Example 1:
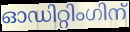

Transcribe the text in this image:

ഓഡിറ്റിംഗിന്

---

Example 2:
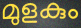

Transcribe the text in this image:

മുളകും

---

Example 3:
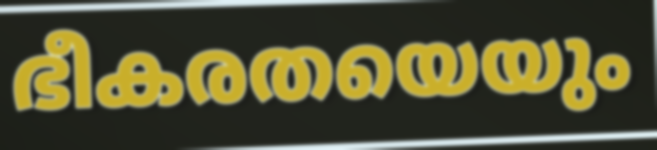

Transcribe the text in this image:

ഭീകരതയെയും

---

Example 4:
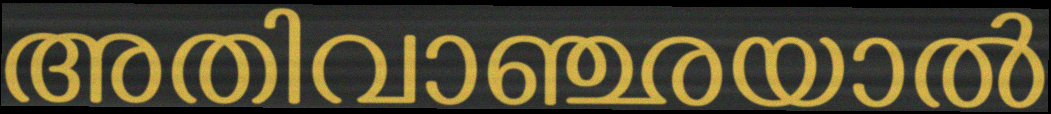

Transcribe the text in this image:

അതിവാഞ്ഛയാൽ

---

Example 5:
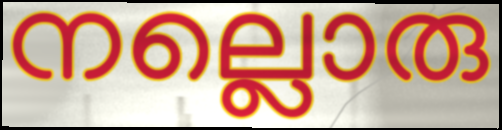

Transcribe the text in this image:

നല്ലൊരു